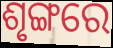
ଶୃଙ୍ଗରେ